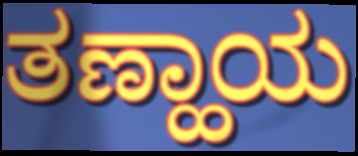
ತಣ್ಹಾಯ